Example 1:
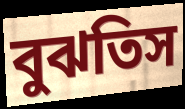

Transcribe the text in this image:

বুঝতিস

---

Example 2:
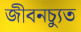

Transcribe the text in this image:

জীবনচ্যুত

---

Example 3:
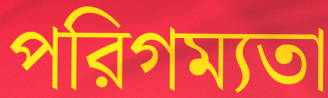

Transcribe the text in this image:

পরিগম্যতা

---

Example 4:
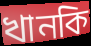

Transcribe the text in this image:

খানকি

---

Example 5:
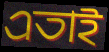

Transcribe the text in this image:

এতাই